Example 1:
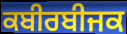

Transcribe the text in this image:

ਕਬੀਰਬੀਜਕ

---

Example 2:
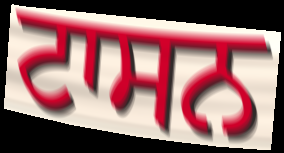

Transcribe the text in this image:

ਟਾਸਨ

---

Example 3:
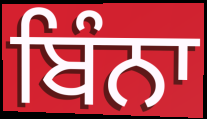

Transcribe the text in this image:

ਬਿੰਨਾ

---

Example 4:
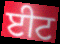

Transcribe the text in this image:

ਈਟ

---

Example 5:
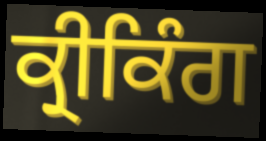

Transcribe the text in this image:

ਕ੍ਰੀਕਿੰਗ